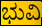
ಭುವಿ